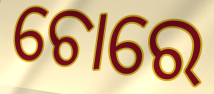
ଚୋରେ